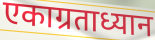
एकाग्रताध्यान